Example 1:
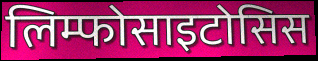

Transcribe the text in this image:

लिम्फोसाइटोसिस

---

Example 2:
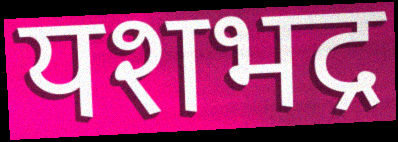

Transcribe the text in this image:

यशभद्र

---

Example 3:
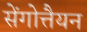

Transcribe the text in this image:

सेंगोत्तैयन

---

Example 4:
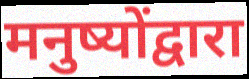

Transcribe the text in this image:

मनुष्योंद्वारा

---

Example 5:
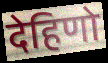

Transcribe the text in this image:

देहिणो